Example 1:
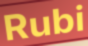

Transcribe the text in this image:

Rubi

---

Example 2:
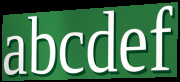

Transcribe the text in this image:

abcdef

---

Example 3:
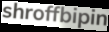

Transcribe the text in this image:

shroffbipin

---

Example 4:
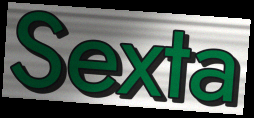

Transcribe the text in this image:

Sexta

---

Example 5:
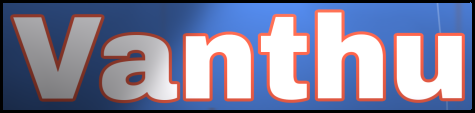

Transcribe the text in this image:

Vanthu